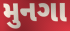
મુનગા